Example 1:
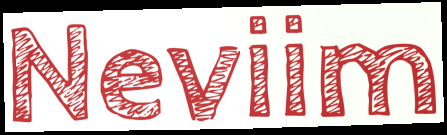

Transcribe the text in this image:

Neviim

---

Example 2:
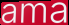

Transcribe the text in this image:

ama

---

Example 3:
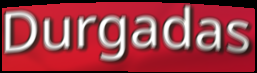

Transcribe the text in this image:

Durgadas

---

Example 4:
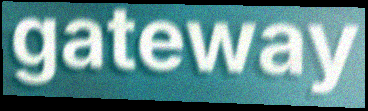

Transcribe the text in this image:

gateway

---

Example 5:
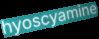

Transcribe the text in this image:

hyoscyamine